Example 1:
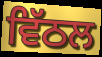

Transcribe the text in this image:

ਵਿੱਠਲ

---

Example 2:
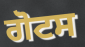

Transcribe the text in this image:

ਗੋਟਸ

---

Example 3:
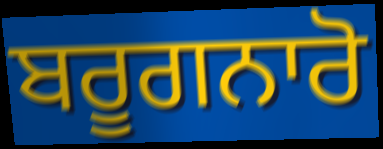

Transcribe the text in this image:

ਬਰੂਗਨਾਰੋ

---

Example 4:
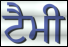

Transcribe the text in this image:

ਟੈਮੀ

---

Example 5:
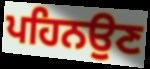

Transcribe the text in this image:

ਪਹਿਨਉਣ